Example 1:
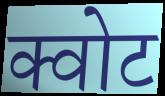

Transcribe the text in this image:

क्वोट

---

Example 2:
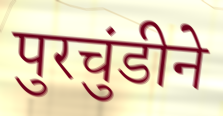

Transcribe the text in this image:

पुरचुंडीने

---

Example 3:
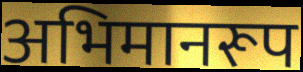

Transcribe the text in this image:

अभिमानरूप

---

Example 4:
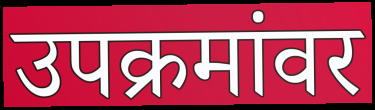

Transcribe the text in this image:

उपक्रमांवर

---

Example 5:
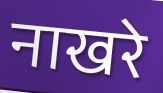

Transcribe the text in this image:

नाखरे